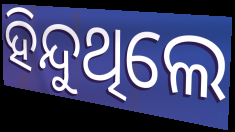
ହିନ୍ଦୁଥିଲେ